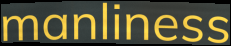
manliness